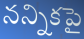
నన్నికపై